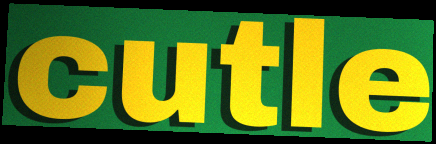
cutle